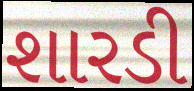
શારડી